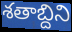
శతాబ్దిని